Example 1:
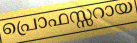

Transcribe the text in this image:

പ്രൊഫസ്സറായ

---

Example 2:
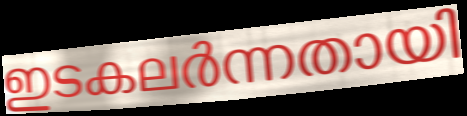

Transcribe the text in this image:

ഇടകലർന്നതായി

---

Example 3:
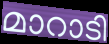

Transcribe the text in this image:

മാറാടി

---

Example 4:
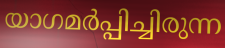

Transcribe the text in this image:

യാഗമർപ്പിച്ചിരുന്ന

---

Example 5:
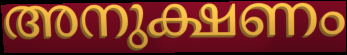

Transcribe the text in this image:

അനുക്ഷണം